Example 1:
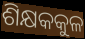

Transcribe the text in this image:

ଶିକ୍ଷକକୁଳ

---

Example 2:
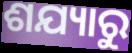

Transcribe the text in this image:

ଶଯ୍ୟାରୁ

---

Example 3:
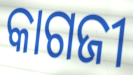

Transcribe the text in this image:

କାଗଜୀ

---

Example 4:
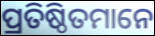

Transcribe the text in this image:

ପ୍ରତିଷ୍ଠିତମାନେ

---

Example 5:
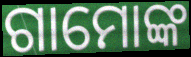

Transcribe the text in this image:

ଗାମୋଙ୍କ